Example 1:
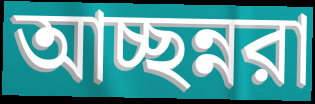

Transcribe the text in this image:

আচ্ছন্নরা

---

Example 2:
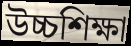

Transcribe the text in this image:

উচ্চশিক্ষা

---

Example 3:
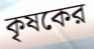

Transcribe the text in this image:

কৃষকের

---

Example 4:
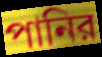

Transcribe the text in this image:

পানির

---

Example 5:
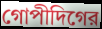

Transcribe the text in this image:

গোপীদিগের